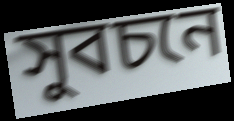
সুবচনে